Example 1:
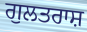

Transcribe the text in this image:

ਗੁਲਤਰਾਸ਼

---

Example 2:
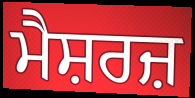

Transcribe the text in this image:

ਮੈਸ਼ਰਜ਼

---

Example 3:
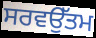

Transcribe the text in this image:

ਸਰਵਉੱਤਮ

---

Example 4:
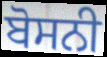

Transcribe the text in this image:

ਬੋਸਨੀ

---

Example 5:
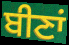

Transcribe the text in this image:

ਬੀਣਾਂ